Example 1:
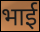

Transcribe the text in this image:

भार्ई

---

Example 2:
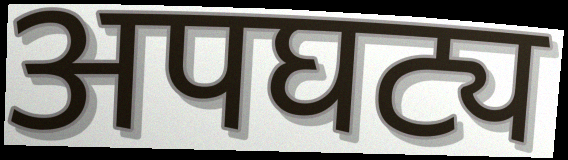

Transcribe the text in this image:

अपघट्य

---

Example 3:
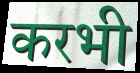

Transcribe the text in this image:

करभी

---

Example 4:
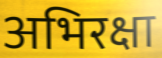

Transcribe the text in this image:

अभिरक्षा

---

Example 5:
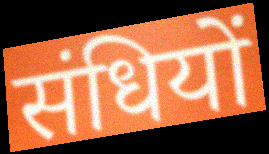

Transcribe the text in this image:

संधियों